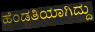
ಹೆಂಡತಿಯಾಗಿದ್ದು